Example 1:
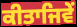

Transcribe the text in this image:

ਕੀਤਾਜਿਵੇਂ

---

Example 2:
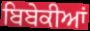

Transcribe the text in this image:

ਬਿਬੇਕੀਆਂ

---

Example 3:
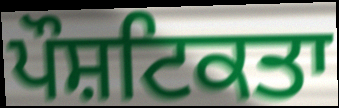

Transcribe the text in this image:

ਪੌਸ਼ਟਿਕਤਾ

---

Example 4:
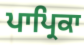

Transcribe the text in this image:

ਪਾਪ੍ਰਿਕਾ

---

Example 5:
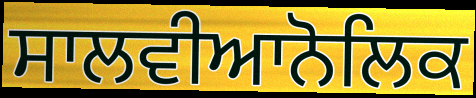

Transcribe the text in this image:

ਸਾਲਵੀਆਨੋਲਿਕ